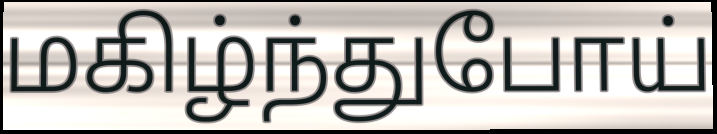
மகிழ்ந்துபோய்